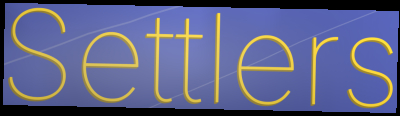
Settlers